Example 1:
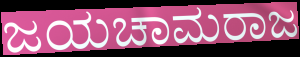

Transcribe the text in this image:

ಜಯಚಾಮರಾಜ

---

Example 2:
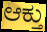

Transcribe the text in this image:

ಆಕ್ತು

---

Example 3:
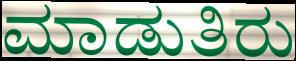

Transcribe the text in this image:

ಮಾಡುತಿರು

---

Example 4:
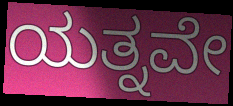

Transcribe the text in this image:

ಯತ್ನವೇ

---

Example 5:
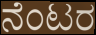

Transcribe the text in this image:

ನೆಂಟರ